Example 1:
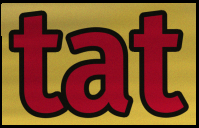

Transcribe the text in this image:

tat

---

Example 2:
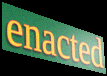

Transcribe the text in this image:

enacted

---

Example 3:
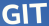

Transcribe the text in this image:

GIT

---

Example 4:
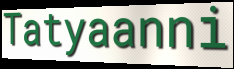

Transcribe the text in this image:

Tatyaanni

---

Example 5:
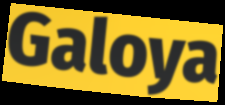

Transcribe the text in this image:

Galoya